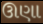
ઊણા